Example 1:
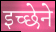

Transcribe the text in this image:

इच्छेने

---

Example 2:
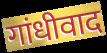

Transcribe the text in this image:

गांधीवाद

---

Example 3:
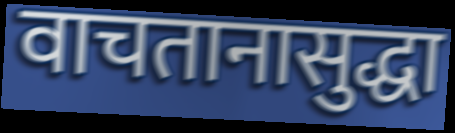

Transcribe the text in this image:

वाचतानासुद्धा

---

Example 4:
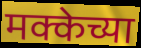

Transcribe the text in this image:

मक्केच्या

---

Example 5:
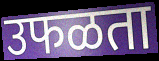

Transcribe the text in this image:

उफळता